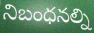
నిబంధనల్ని